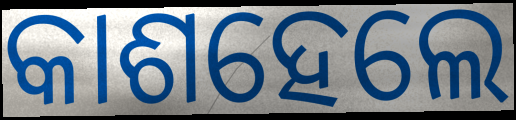
କାଶହେଲେ